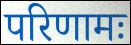
परिणामः